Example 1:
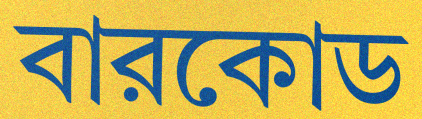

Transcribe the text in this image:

বারকোড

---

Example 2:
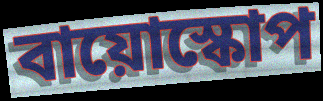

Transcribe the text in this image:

বায়োস্কোপ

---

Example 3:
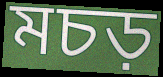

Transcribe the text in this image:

মচড়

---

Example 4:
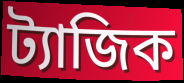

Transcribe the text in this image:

ট্যাজিক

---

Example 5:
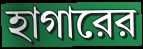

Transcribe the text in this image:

হাগারের